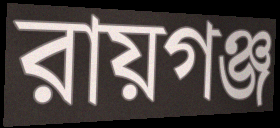
রায়গঞ্জ